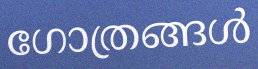
ഗോത്രങ്ങൾ